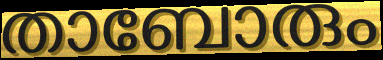
താബോരും